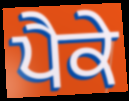
ਪੈਕੇ